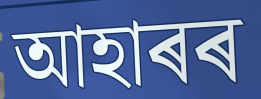
আহাৰৰ